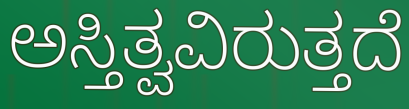
ಅಸ್ತಿತ್ವವಿರುತ್ತದೆ